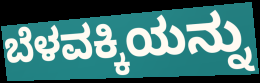
ಬೆಳವಕ್ಕಿಯನ್ನು